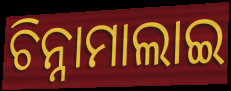
ଚିନ୍ନାମାଲାଇ